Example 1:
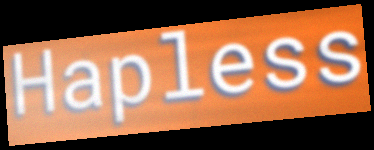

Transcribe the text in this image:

Hapless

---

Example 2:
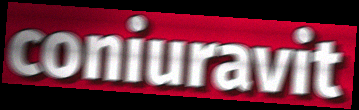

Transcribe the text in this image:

coniuravit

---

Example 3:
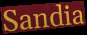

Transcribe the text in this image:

Sandia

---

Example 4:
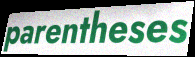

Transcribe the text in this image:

parentheses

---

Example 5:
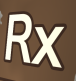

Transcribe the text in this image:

Rx